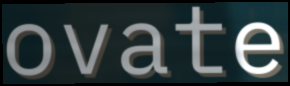
ovate